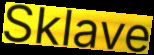
Sklave